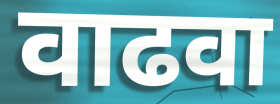
वाढवा